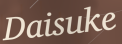
Daisuke